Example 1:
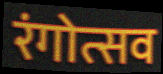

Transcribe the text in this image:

रंगोत्सव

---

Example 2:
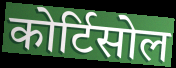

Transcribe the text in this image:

कोर्टिसोल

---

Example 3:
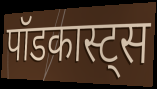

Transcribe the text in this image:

पॉडकास्ट्स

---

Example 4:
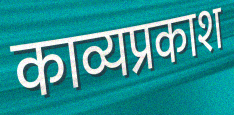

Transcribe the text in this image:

काव्यप्रकाश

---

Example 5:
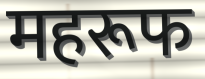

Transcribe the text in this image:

महरूफ